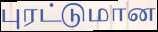
புரட்டுமான